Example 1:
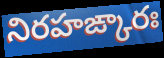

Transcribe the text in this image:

నిరహఙ్కారః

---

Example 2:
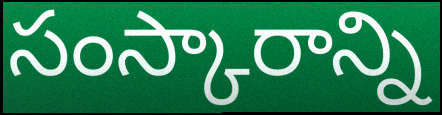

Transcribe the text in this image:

సంస్కారాన్ని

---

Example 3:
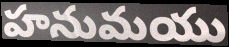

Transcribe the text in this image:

హనుమయు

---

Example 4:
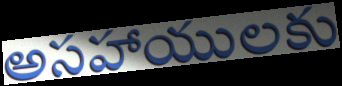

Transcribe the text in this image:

అసహాయులకు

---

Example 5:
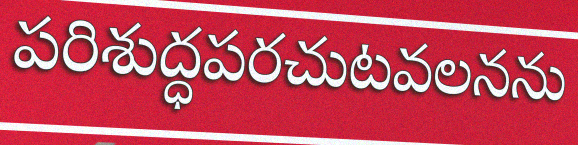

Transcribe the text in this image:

పరిశుద్ధపరచుటవలనను